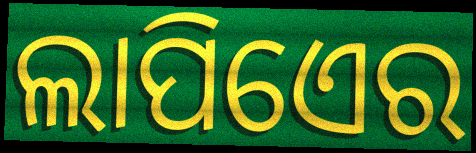
ଲାପିଏେର